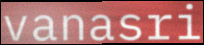
vanasri